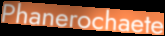
Phanerochaete